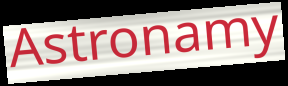
Astronamy